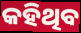
କହିଥିବ